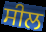
ਸੀਲ